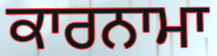
ਕਾਰਨਾਮਾ